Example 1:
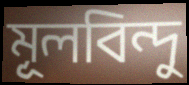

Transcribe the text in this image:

মূলবিন্দু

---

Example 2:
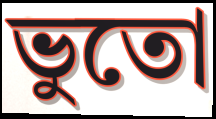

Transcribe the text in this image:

ভুতো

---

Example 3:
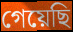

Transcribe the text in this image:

গেয়েছি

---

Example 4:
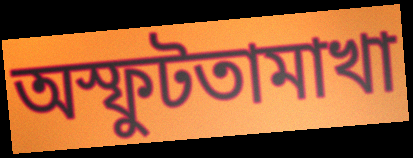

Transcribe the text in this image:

অস্ফুটতামাখা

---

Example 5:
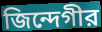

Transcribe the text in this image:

জিন্দেগীর